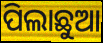
ପିଲାଛୁଆ